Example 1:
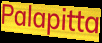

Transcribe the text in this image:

Palapitta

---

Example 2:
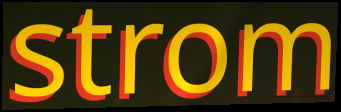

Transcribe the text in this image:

strom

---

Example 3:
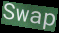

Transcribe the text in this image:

Swap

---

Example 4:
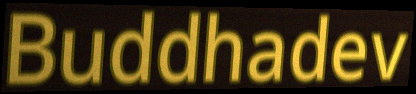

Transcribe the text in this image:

Buddhadev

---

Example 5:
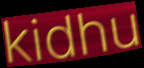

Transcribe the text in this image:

kidhu